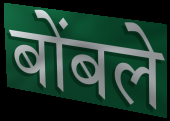
बोंबले